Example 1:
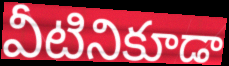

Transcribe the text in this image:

వీటినికూడా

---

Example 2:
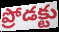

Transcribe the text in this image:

ప్రోడక్టు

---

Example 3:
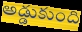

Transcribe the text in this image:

అడ్డుకుంది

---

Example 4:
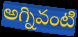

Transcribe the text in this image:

అగ్నివంటి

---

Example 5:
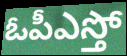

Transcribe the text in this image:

ఓపీఎస్తో